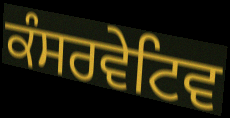
ਕੰਸਰਵੇਟਿਵ